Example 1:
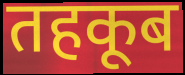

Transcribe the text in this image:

तहकूब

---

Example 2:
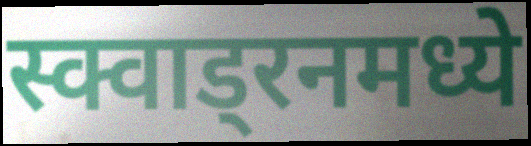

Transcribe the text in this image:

स्क्वाड्रनमध्ये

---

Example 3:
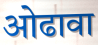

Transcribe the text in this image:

ओढावा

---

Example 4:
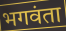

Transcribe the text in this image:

भगवंता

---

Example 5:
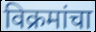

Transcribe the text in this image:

विक्रमांचा